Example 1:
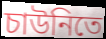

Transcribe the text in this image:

চাউনিতে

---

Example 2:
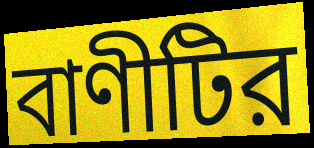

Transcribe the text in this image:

বাণীটির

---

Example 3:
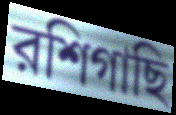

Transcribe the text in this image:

রশিগাছি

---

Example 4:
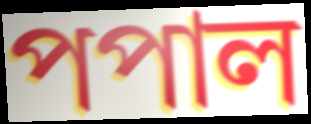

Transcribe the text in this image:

পপাল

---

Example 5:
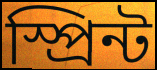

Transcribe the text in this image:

স্প্রিন্ট